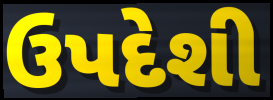
ઉપદેશી